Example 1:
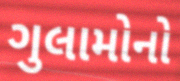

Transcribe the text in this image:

ગુલામોનો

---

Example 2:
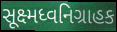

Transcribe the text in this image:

સૂક્ષ્મધ્વનિગ્રાહક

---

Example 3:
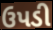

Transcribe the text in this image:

ઉપડી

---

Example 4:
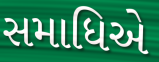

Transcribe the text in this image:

સમાધિએ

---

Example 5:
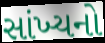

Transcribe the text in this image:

સાંખ્યનો